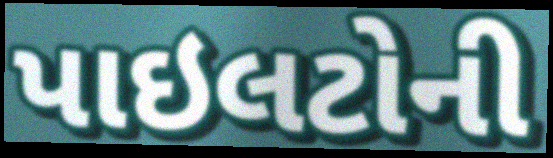
પાઇલટોની